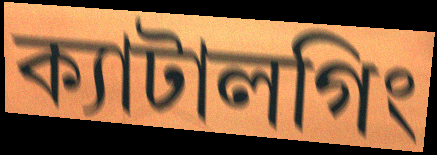
ক্যাটালগিং